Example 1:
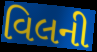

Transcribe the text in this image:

વિલની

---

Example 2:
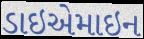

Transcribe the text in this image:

ડાઇએમાઇન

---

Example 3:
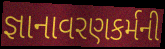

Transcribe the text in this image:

જ્ઞાનાવરણકર્મની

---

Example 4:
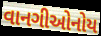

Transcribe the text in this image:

વાનગીઓનોય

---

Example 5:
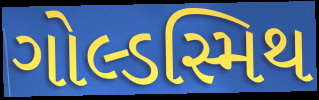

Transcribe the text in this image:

ગોલ્ડસ્મિથ